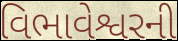
વિભાવેશ્વરની